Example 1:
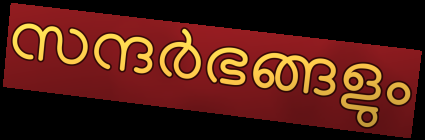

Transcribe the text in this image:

സന്ദർഭങ്ങളും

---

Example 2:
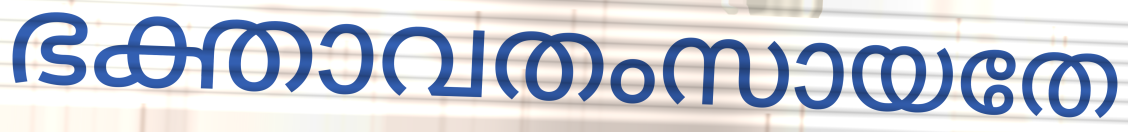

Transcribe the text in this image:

ഭക്താവതംസായതേ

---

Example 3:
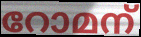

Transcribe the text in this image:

റോമന്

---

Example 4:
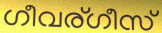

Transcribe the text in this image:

ഗീവര്ഗീസ്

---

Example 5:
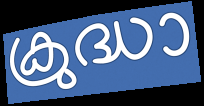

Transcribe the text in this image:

ക്രുദ്ധാ